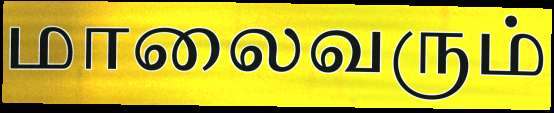
மாலைவரும்